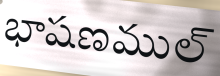
భాషణముల్